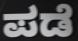
ಪಡೆ